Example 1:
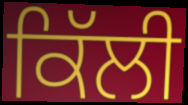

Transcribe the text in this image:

ਕਿੱਲੀ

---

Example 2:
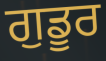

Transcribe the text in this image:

ਗੁਡੂਰ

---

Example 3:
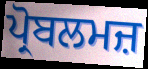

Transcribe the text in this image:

ਪ੍ਰੋਬਲਮਜ਼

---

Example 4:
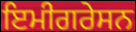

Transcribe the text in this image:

ਇਮੀਗਰੇਸਨ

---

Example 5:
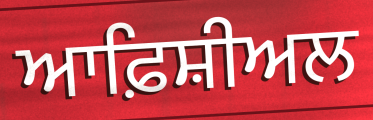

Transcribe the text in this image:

ਆਫ਼ਿਸ਼ੀਅਲ